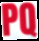
PQ